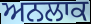
ਅਨਲਾਕ